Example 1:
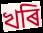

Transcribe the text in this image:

খৰি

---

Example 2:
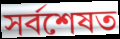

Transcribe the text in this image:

সৰ্বশেষত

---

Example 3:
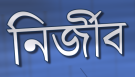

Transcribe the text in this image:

নিৰ্জীব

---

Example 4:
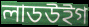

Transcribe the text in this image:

লাডউইগ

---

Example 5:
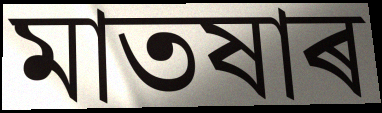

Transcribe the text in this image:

মাতষাৰ